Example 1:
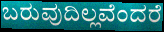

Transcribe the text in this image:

ಬರುವುದಿಲ್ಲವೆಂದರೆ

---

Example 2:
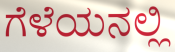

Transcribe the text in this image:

ಗೆಳೆಯನಲ್ಲಿ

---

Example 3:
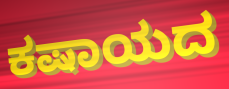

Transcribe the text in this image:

ಕಷಾಯದ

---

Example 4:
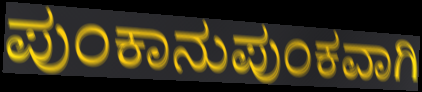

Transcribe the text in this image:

ಪುಂಕಾನುಪುಂಕವಾಗಿ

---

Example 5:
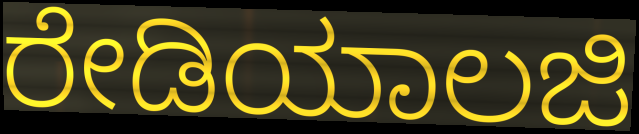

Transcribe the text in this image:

ರೇಡಿಯಾಲಜಿ